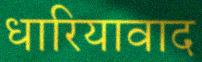
धारियावाद